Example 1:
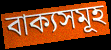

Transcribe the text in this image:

বাক্যসমূহ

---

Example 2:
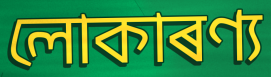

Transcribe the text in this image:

লোকাৰণ্য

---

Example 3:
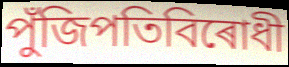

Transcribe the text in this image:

পুঁজিপতিবিৰোধী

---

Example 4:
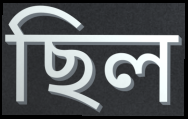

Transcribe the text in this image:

ছিল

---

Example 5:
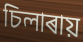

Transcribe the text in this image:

চিলাৰায়